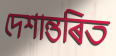
দেশান্তৰিত